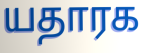
யதாரக